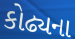
કોઢ્યના